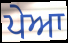
ਪੇਆ